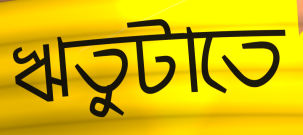
ঋতুটাতে